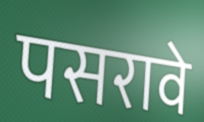
पसरावे